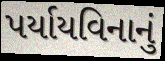
પર્યાયવિનાનું